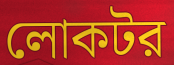
লোকটর